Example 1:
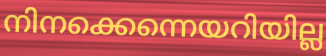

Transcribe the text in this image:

നിനക്കെന്നെയറിയില്ല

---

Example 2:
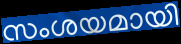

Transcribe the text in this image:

സംശയമായി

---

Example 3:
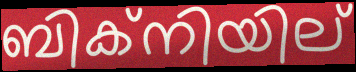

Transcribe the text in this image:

ബിക്നിയില്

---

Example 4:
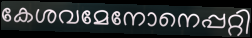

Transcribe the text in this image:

കേശവമേനോനെപ്പറ്റി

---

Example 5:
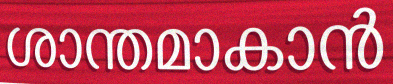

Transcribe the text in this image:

ശാന്തമാകാൻ